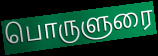
பொருளுரை